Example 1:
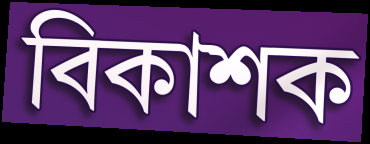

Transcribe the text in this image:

বিকাশক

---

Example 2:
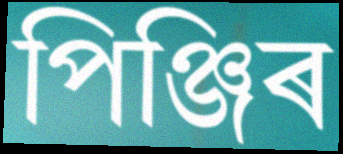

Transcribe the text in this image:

পিঞ্জিৰ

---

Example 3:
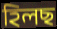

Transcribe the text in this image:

হিলছ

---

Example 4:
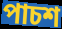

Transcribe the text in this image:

পাচশ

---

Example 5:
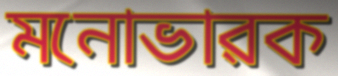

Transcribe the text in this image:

মনোভাৱক